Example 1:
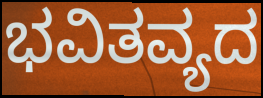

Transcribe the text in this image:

ಭವಿತವ್ಯದ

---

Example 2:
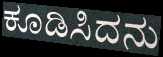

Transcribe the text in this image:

ಕೂಡಿಸಿದನು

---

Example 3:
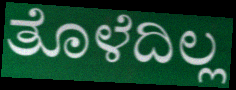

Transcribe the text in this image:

ತೊಳೆದಿಲ್ಲ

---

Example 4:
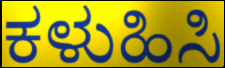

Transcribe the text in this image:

ಕಳುಹಿಸಿ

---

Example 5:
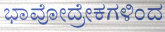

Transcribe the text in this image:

ಭಾವೋದ್ರೇಕಗಳಿಂದ